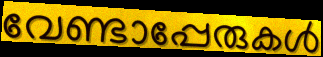
വേണ്ടാപ്പേരുകൾ